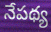
నేపథ్య